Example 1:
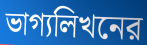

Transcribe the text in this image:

ভাগ্যলিখনের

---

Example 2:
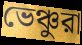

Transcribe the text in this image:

ভেঞ্চুরা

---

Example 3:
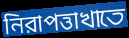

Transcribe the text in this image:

নিরাপত্তাখাতে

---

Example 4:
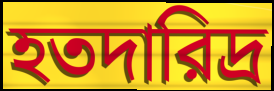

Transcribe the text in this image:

হতদারিদ্র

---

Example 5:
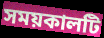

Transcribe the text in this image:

সময়কালটি